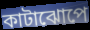
কাটাঝোপে